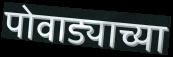
पोवाड्याच्या